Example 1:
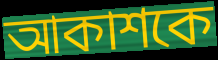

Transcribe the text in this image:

আকাশকে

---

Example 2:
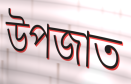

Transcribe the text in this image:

উপজাত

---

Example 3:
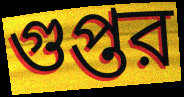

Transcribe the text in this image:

গুপ্তর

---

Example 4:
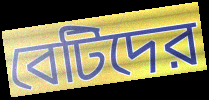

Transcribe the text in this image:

বেটিদের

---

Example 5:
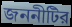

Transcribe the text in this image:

জননীটির